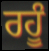
ਰਹੂੰ